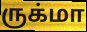
ருக்மா